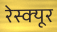
रेस्क्यूर